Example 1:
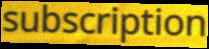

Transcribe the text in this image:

subscription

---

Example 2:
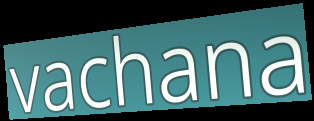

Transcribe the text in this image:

vachana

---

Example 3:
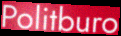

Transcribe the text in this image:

Politburo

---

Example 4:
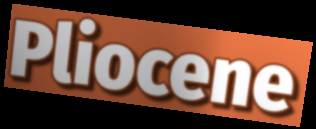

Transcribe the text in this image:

Pliocene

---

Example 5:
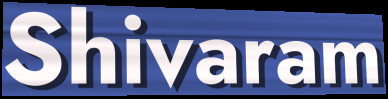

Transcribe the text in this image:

Shivaram